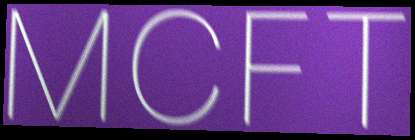
MCFT